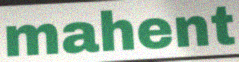
mahent